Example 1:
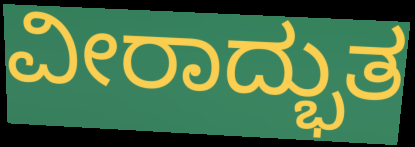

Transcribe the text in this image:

ವೀರಾದ್ಭುತ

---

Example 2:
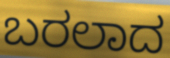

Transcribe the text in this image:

ಬರಲಾದ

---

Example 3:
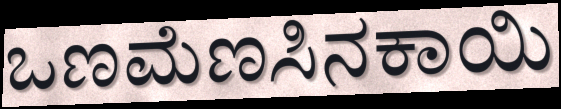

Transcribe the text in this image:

ಒಣಮೆಣಸಿನಕಾಯಿ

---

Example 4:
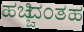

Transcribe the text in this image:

ಹಚ್ಚಿದಂತಹ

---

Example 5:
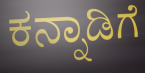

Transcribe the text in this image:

ಕನ್ನಾಡಿಗೆ